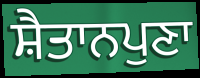
ਸ਼ੈਤਾਨਪੁਣਾ